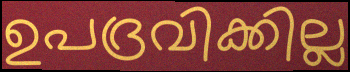
ഉപദ്രവിക്കില്ല